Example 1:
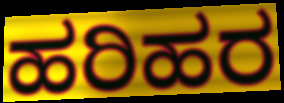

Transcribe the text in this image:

ಹರಿಹರ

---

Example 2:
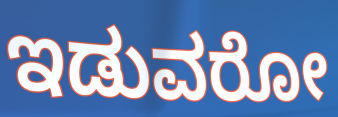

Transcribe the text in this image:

ಇಡುವರೋ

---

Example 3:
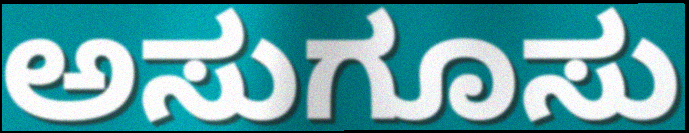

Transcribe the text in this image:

ಅಸುಗೂಸು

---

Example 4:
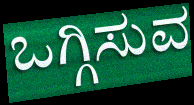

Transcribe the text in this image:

ಒಗ್ಗಿಸುವ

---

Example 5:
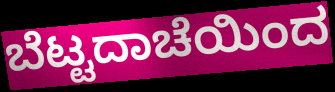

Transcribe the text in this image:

ಬೆಟ್ಟದಾಚೆಯಿಂದ